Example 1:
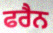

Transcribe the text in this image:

ਫਰੈਨ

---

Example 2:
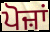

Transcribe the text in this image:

ਪੋਜ਼ਾਂ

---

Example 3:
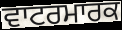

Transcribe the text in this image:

ਵਾਟਰਮਾਰਕ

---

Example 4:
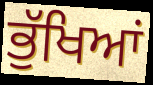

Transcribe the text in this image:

ਭੁੱਖਿਆਂ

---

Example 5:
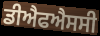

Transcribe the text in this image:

ਡੀਐਫਐਸਸੀ